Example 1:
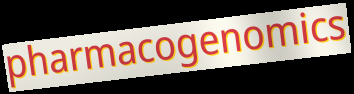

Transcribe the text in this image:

pharmacogenomics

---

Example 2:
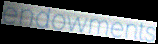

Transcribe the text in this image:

endowments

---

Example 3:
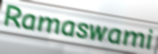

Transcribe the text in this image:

Ramaswami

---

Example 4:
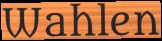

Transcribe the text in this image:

Wahlen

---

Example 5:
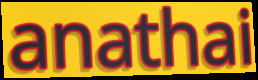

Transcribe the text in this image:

anathai